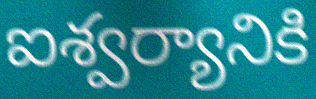
ఐశ్వర్యానికి